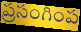
ప్రసంగింప